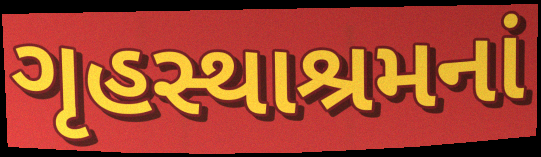
ગૃહસ્થાશ્રમનાં